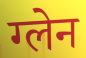
ग्लेन